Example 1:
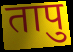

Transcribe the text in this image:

तापु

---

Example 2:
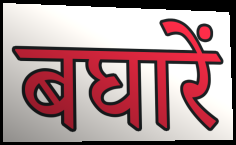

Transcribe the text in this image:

बघारें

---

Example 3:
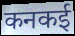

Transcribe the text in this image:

कनकई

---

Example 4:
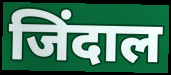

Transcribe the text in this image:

जिंदाल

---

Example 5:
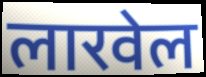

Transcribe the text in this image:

लारवेल